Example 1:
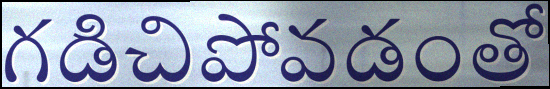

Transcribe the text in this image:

గడిచిపోవడంతో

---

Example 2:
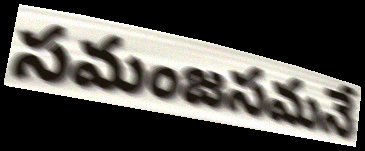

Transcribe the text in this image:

సమంజసమనే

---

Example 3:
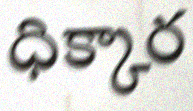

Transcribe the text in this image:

ధిక్కార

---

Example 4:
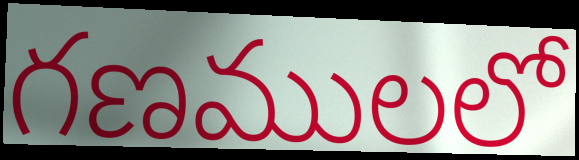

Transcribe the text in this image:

గణములలో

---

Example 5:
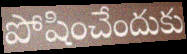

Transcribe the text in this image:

పోషించేందుకు